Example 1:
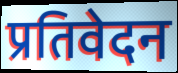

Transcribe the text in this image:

प्रतिवेदन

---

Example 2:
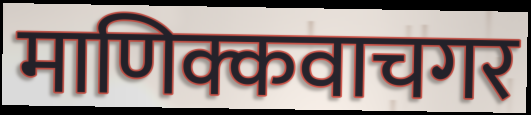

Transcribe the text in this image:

माणिक्कवाचगर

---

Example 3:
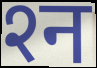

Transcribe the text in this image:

श्न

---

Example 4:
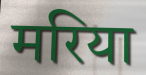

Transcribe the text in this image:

मरिया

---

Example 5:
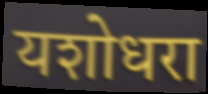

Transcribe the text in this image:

यशोधरा